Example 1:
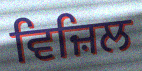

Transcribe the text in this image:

ਵਿਜ਼ਿਲ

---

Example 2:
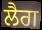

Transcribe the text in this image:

ਲੈਗ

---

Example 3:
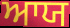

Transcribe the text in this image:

ਆਯ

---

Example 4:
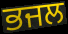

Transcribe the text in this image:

ਭਜਲ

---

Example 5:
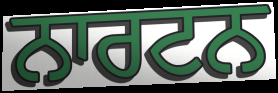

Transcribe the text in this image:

ਨਾਰਟਨ